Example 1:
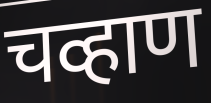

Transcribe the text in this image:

चव्हाण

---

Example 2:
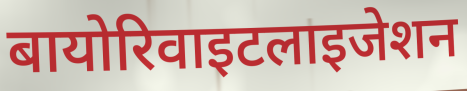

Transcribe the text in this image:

बायोरिवाइटलाइजेशन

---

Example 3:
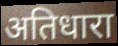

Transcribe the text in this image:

अतिधारा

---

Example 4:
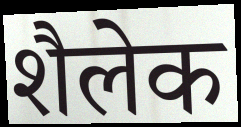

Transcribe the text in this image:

शैलेक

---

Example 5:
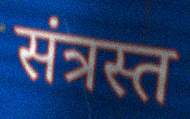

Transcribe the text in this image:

संत्रस्त